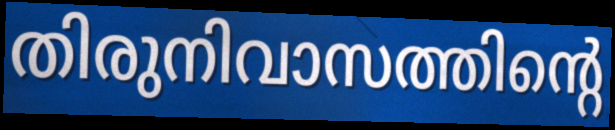
തിരുനിവാസത്തിന്റെ